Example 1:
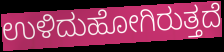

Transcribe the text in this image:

ಉಳಿದುಹೋಗಿರುತ್ತದೆ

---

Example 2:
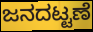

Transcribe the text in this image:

ಜನದಟ್ಟಣೆ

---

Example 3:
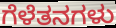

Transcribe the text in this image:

ಗೆಳೆತನಗಳು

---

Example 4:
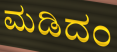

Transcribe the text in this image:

ಮಡಿದಂ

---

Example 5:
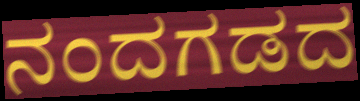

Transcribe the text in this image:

ನಂದಗಡದ